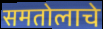
समतोलाचे